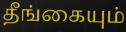
தீங்கையும்